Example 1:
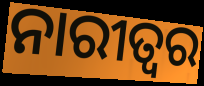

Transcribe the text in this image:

ନାରୀତ୍ଵର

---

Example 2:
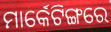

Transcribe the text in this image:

ମାର୍କେଟିଙ୍ଗରେ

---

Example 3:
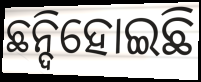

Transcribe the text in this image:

ଛନ୍ଦିହୋଇଛି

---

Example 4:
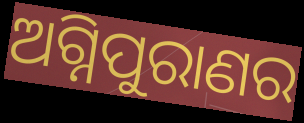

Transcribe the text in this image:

ଅଗ୍ନିପୁରାଣର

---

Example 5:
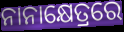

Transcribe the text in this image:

ନାନାକ୍ଷେତ୍ରରେ